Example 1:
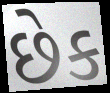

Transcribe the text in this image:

છેક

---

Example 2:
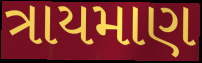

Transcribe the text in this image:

ત્રાયમાણ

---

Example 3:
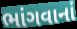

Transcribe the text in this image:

ભાંગવાનાં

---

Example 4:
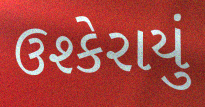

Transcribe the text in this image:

ઉશ્કેરાયું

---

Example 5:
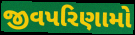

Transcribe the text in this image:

જીવપરિણામો